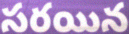
సరయిన